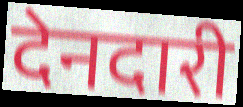
देनदारी